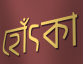
হোঁৎকা